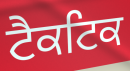
ਟੈਕਟਿਕ